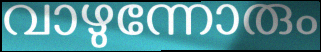
വാഴുന്നോരും